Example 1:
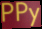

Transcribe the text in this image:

PPy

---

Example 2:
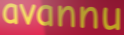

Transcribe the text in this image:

avannu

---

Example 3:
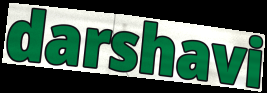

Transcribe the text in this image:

darshavi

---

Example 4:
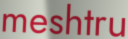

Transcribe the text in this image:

meshtru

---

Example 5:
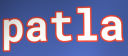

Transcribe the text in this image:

patla